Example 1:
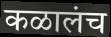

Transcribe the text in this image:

कळालंच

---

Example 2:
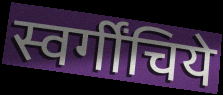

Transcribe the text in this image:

स्वर्गींचिये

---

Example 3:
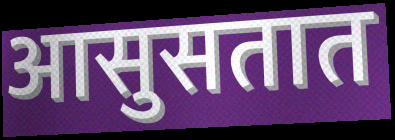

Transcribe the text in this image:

आसुसतात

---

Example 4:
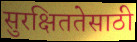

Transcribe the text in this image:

सुरक्षिततेसाठी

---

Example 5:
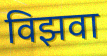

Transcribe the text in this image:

विझवा